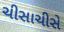
ચીસાચીસે